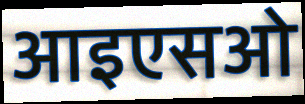
आइएसओ